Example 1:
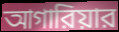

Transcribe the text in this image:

আগারিয়ার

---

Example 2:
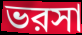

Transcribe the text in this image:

ভরসা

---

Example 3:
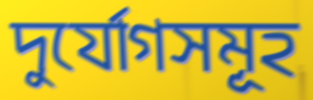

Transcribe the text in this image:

দুর্যোগসমূহ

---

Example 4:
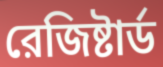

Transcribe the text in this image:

রেজিষ্টার্ড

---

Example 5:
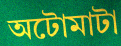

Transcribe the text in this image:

অটোমাটা